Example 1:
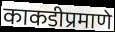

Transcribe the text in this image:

काकडीप्रमाणे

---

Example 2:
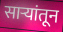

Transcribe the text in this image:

साऱ्यांतून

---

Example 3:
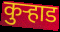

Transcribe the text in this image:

कुर्‍हाड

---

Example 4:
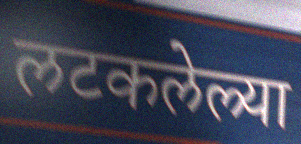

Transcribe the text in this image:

लटकलेल्या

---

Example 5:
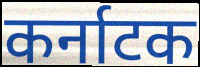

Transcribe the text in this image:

कर्नाटक